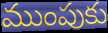
ముంపుకు